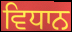
ਵਿਧਾਨ